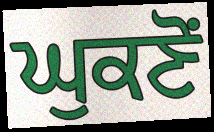
ਘੁਕਣੋਂ